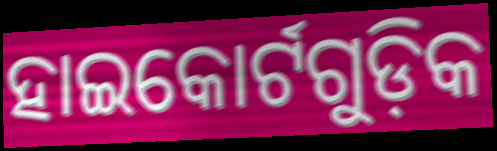
ହାଇକୋର୍ଟଗୁଡ଼ିକ